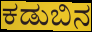
ಕಡುಬಿನ